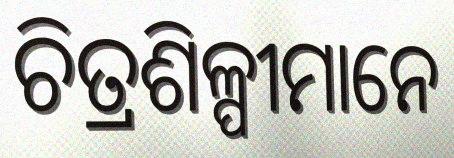
ଚିତ୍ରଶିଳ୍ପୀମାନେ